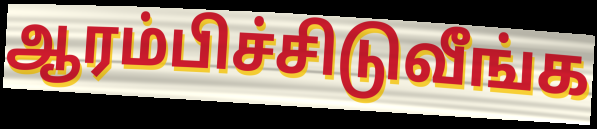
ஆரம்பிச்சிடுவீங்க